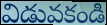
విడువకండి